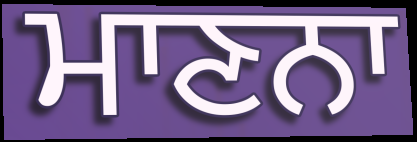
ਮਾਣਨਾ